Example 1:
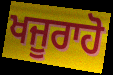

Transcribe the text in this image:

ਖਜੂਰਾਹੋ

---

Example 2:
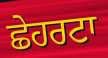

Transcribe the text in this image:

ਛੇਹਰਟਾ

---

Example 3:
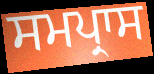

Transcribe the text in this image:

ਸਮਪ੍ਰਾਸ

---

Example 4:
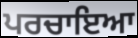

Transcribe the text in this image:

ਪਰਚਾਇਆ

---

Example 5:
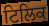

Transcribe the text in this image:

ਟਿਲਿਕ